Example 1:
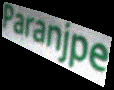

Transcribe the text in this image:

Paranjpe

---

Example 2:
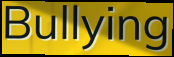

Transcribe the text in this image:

Bullying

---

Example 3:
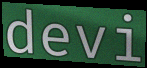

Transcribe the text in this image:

devi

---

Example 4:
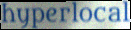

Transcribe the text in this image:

hyperlocal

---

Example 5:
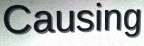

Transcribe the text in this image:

Causing